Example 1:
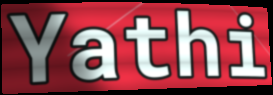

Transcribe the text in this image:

Yathi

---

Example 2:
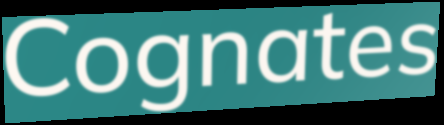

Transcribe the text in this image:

Cognates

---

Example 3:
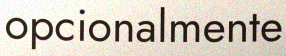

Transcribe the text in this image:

opcionalmente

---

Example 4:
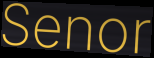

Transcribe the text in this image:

Senor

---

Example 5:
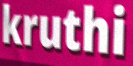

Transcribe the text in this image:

kruthi